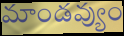
మాండవ్యుం